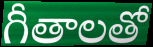
గీతాలతో